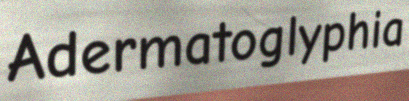
Adermatoglyphia